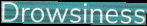
Drowsiness